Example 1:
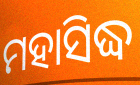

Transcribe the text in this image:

ମହାସିଦ୍ଧ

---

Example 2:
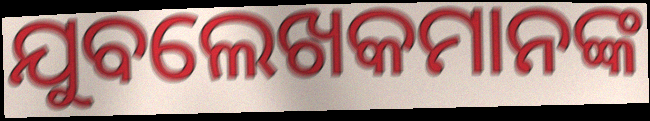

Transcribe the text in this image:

ଯୁବଲେଖକମାନଙ୍କ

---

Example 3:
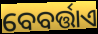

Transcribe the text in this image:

ବେବର୍ତ୍ତାଏ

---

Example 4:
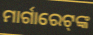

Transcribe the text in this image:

ମାର୍ଗାରେଟ୍‍ଙ୍କ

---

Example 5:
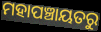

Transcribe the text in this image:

ମହାପଞ୍ଚାୟତରୁ